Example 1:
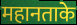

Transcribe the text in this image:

महानताके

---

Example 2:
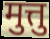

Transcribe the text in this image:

मुत्तु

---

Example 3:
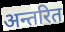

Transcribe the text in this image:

अन्तरित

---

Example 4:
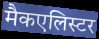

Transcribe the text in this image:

मैकएलिस्टर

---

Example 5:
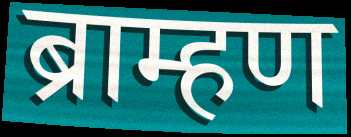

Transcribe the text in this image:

ब्राम्हण